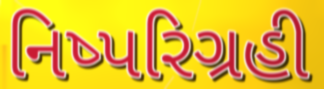
નિષ્પરિગ્રહી